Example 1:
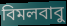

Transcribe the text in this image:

বিমলবাবু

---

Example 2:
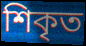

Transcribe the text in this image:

শিকৃত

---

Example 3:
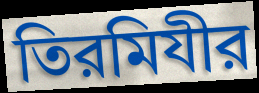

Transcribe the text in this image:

তিরমিযীর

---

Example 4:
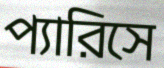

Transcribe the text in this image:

প্যারিসে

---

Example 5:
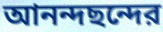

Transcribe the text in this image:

আনন্দছন্দের